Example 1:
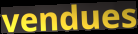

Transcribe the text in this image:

vendues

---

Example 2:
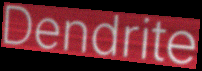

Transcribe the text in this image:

Dendrite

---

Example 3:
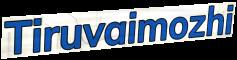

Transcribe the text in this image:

Tiruvaimozhi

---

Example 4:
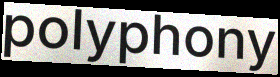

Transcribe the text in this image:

polyphony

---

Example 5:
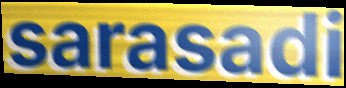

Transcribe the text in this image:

sarasadi